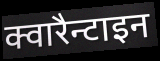
क्वारैन्टाइन